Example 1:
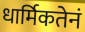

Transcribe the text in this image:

धार्मिकतेनं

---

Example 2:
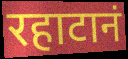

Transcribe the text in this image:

रहाटानं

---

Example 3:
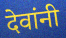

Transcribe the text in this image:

देवांनी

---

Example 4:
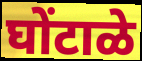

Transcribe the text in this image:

घोंटाळे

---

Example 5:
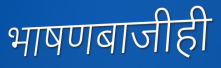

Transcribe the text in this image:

भाषणबाजीही